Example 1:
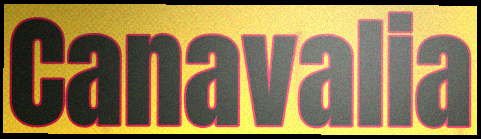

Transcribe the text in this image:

Canavalia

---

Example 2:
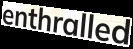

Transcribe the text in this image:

enthralled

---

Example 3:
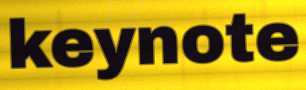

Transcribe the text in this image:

keynote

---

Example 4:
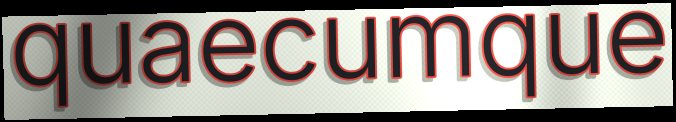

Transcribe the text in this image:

quaecumque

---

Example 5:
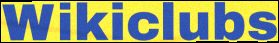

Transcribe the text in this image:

Wikiclubs